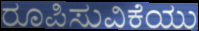
ರೂಪಿಸುವಿಕೆಯು